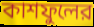
কাশফুলের